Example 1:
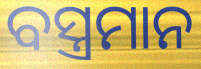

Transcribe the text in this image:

ବସ୍ତ୍ରମାନ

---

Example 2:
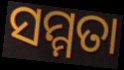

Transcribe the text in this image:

ସମ୍ମତା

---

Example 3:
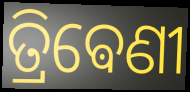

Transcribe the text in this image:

ତ୍ରିଵେଣୀ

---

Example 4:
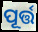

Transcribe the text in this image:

ପୂର୍ତ୍ତ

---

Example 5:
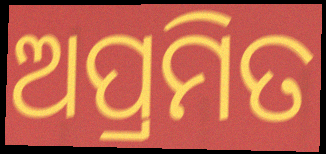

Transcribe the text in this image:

ଅପ୍ରମିତ